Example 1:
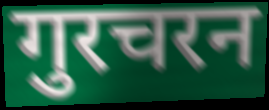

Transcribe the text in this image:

गुरचरन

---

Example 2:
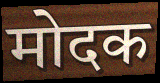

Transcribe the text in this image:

मोदक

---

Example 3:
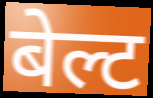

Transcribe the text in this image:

बेल्ट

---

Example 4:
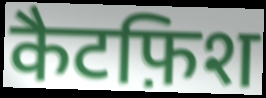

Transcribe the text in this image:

कैटफ़िश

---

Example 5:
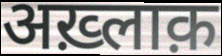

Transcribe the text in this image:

अख़्लाक़